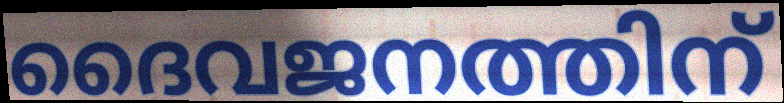
ദൈവജനത്തിന്